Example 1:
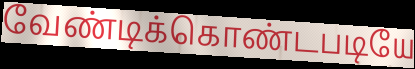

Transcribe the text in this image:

வேண்டிக்கொண்டபடியே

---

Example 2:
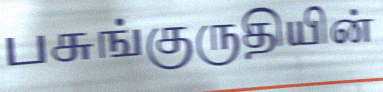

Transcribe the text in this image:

பசுங்குருதியின்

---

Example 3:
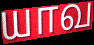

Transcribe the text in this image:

யாவ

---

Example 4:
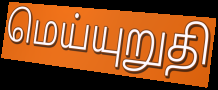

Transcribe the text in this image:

மெய்யுறுதி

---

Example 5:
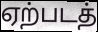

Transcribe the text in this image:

ஏற்படத்